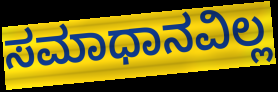
ಸಮಾಧಾನವಿಲ್ಲ